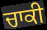
ਚਾਕੀ